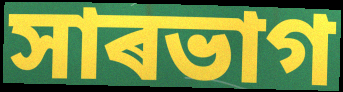
সাৰভাগ